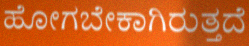
ಹೋಗಬೇಕಾಗಿರುತ್ತದೆ